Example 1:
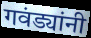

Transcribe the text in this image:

गवंड्यांनी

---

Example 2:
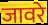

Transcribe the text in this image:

जावरे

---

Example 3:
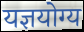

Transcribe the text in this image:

यज्ञयोग्य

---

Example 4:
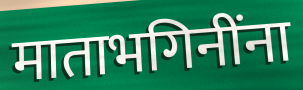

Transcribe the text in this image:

माताभगिनींना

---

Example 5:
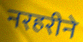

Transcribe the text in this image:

नरहरीने